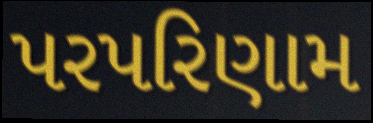
પરપરિણામ